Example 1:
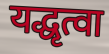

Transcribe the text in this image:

यद्धृत्वा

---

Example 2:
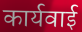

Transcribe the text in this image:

कार्यवाई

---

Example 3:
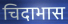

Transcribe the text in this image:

चिदाभास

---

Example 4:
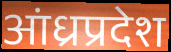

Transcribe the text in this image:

आंध्रप्रदेश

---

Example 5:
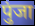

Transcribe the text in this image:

पुंजा